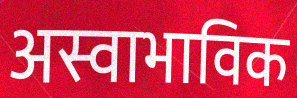
अस्वाभाविक